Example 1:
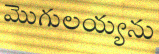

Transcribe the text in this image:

మొగులయ్యను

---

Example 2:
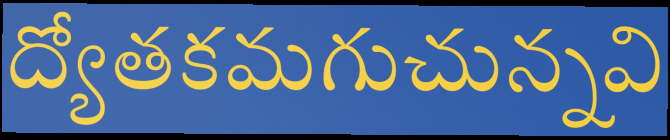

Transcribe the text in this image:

ద్యోతకమగుచున్నవి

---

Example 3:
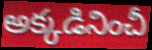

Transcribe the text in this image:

అక్కడినించీ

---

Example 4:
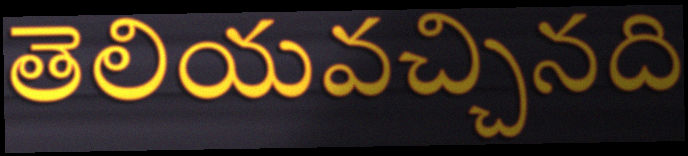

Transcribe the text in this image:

తెలియవచ్చినది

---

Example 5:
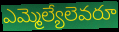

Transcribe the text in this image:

ఎమ్మెల్యేలెవరూ